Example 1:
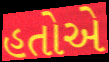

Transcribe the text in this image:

હતોએ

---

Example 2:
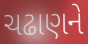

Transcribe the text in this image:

ચઢાણને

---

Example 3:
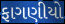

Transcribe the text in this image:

ફાગણીયો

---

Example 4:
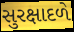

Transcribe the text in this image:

સુરક્ષાદળે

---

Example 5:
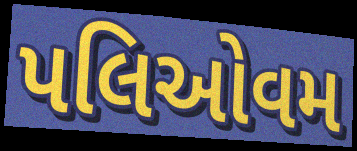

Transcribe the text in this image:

પલિઓવમ